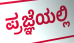
ಪ್ರಜ್ಞೆಯಲ್ಲಿ